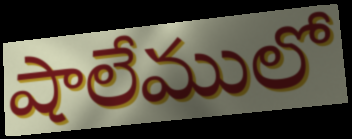
షాలేములో